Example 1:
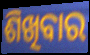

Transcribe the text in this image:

ଶିଖିବାର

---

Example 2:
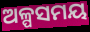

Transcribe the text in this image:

ଅଳ୍ପସମୟ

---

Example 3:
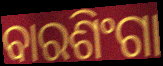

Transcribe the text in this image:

ବାରଶିଂଗା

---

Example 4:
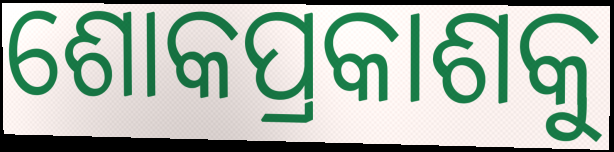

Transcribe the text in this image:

ଶୋକପ୍ରକାଶକୁ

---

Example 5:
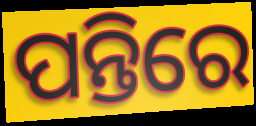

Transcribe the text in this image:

ପନ୍ତିରେ